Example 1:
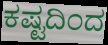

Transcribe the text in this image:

ಕಷ್ಟದಿಂದ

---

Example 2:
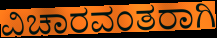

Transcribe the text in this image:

ವಿಚಾರವಂತರಾಗಿ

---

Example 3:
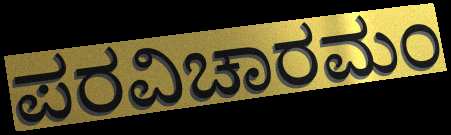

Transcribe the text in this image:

ಪರವಿಚಾರಮಂ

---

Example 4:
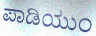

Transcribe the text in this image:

ಪಾಡಿಯುಂ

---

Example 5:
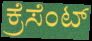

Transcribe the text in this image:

ಕ್ರೆಸೆಂಟ್